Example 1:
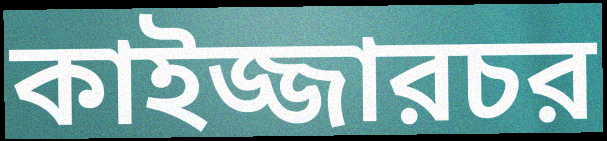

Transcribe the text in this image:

কাইজ্জারচর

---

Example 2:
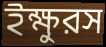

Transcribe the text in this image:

ইক্ষুরস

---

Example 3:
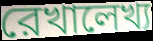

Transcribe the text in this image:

রেখালেখ্য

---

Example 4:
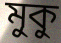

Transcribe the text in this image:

মুকু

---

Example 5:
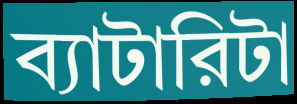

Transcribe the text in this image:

ব্যাটারিটা